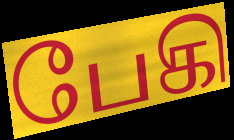
பேகி